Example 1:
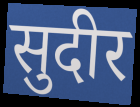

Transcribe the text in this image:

सुदीर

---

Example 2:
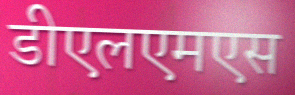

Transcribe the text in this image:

डीएलएमएस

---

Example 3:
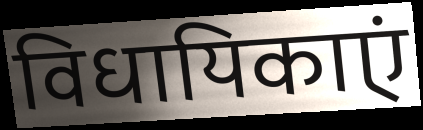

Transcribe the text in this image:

विधायिकाएं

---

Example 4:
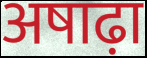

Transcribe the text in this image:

अषाढ़ा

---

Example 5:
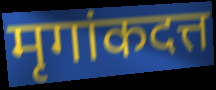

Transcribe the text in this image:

मृगांकदत्त